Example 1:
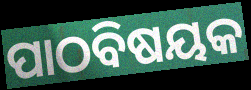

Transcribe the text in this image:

ପାଠବିଷୟକ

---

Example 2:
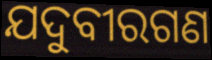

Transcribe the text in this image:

ଯଦୁବୀରଗଣ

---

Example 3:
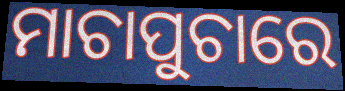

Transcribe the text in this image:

ମାଚାପୁଚାରେ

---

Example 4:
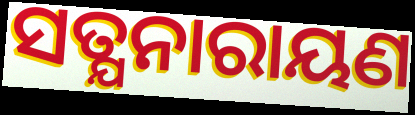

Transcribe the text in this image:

ସତ୍ଯନାରାୟଣ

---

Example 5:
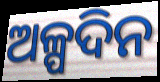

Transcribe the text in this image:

ଅଳ୍ପଦିନ